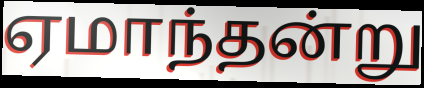
ஏமாந்தன்று